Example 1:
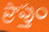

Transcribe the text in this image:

ప్రాప్తుం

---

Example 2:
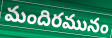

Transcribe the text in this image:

మందిరమునం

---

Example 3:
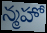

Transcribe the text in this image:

న్మహో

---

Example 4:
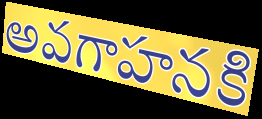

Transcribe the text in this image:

అవగాహనకి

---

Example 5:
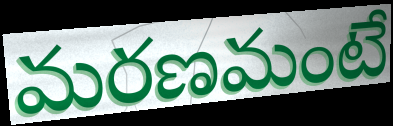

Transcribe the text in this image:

మరణమంటే